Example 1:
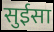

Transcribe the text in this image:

सुईसा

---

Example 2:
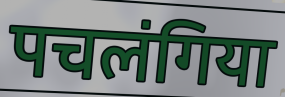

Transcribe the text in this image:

पचलंगिया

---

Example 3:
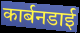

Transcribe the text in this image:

कार्बनडाई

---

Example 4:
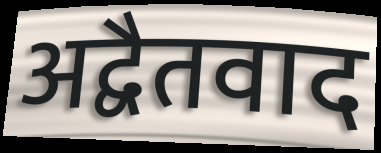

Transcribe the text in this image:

अद्वैतवाद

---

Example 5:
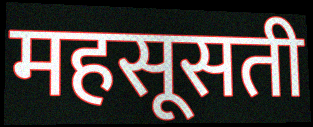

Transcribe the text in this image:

महसूसती